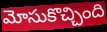
మోసుకొచ్చింది